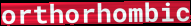
orthorhombic